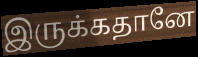
இருக்கதானே